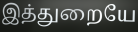
இத்துறையே